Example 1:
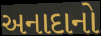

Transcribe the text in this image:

અનાદાનો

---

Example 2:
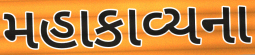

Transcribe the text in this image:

મહાકાવ્યના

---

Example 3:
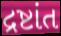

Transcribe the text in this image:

દ્રષ્ટાંત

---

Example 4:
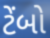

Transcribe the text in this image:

ટેંબો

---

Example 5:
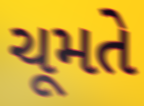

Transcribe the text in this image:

ચૂમતે